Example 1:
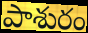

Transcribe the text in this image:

పాశురం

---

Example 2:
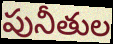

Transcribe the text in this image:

పునీతుల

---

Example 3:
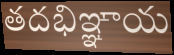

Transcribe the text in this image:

తదభిఞ్ఞాయ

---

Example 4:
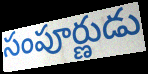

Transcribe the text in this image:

సంపూర్ణుడు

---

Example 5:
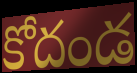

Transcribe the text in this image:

కోదండ